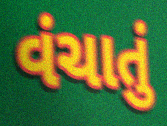
વંચાતું